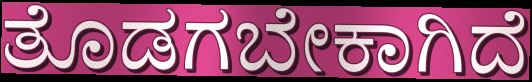
ತೊಡಗಬೇಕಾಗಿದೆ